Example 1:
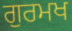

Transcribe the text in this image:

ਗੁਰਮਖ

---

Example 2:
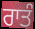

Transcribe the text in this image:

ਰਾਤੰ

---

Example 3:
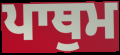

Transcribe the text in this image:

ਪਾਥੁਮ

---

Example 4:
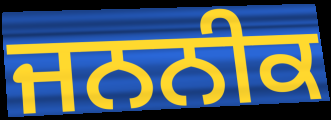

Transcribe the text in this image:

ਜਨਨੀਕ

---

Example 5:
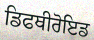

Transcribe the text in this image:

ਡਿਫਥੀਰੋਇਡ